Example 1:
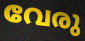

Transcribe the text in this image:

വേരു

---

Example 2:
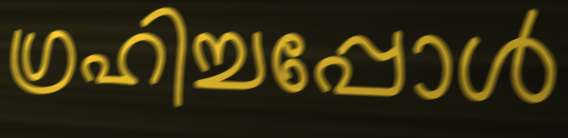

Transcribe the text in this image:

ഗ്രഹിച്ചപ്പോൾ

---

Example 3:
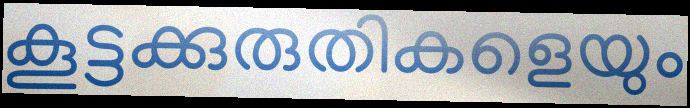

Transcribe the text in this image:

കൂട്ടക്കുരുതികളെയും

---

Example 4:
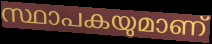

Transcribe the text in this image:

സ്ഥാപകയുമാണ്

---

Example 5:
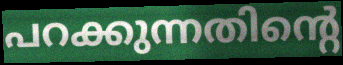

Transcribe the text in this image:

പറക്കുന്നതിന്റെ